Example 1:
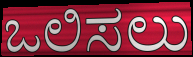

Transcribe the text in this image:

ಒಲಿಸಲು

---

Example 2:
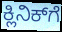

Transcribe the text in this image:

ಕ್ಲಿನಿಕ್‍ಗೆ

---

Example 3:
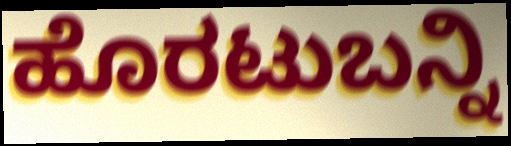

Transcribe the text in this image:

ಹೊರಟುಬನ್ನಿ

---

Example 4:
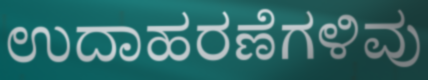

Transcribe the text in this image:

ಉದಾಹರಣೆಗಳಿವು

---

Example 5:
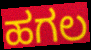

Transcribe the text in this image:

ಹಗಲ